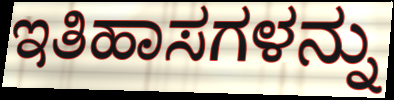
ಇತಿಹಾಸಗಳನ್ನು